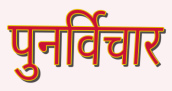
पुनर्विचार